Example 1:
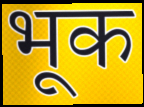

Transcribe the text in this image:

भूक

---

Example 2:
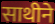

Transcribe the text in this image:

साथीने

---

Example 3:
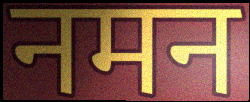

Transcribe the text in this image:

नमन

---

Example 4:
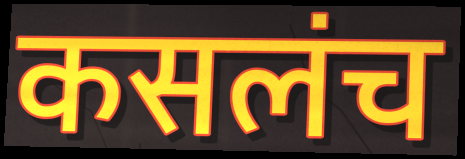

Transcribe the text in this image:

कसलंच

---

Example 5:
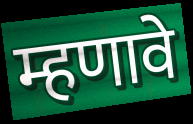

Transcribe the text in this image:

म्हणावे